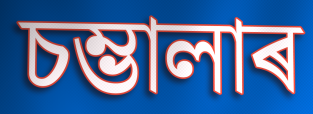
চম্ভালাৰ